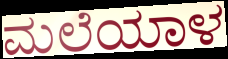
ಮಲೆಯಾಳ